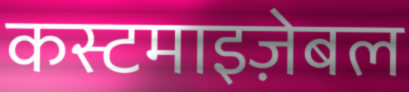
कस्टमाइज़ेबल